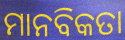
ମାନବିକତା